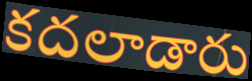
కదలాడారు